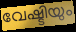
വേഷ്ടിയും